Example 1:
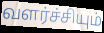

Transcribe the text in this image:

வளர்ச்சியும்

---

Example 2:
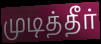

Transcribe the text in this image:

முடித்தீர்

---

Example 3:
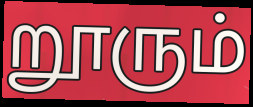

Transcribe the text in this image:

றூரும்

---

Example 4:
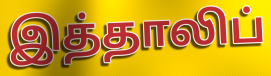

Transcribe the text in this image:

இத்தாலிப்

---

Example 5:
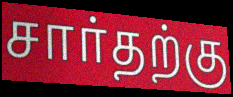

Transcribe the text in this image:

சார்தற்கு